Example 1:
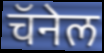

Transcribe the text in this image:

चॅनेल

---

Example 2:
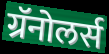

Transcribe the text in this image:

ग्रॅनोलर्स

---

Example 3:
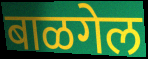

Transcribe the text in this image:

बाळगेल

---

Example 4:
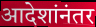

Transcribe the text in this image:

आदेशांनंतर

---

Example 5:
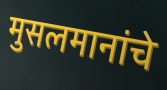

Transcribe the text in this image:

मुसलमानांचे